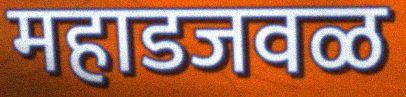
महाडजवळ